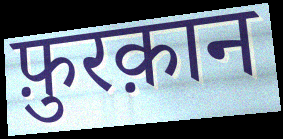
फ़ुरक़ान